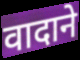
वादाने